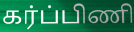
கர்ப்பிணி